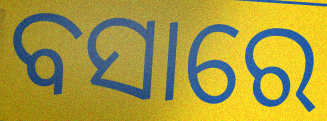
ବସାରେ